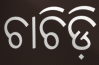
ଚାଚିଡ଼ି